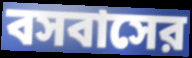
বসবাসের